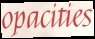
opacities